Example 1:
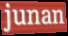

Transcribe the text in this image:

junan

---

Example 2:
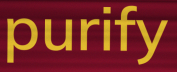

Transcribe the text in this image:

purify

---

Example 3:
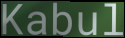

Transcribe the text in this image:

Kabul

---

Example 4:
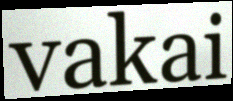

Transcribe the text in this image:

vakai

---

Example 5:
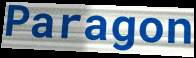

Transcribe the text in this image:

Paragon